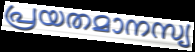
പ്രയതമാനസ്യ